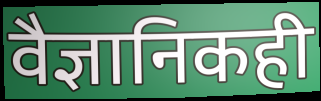
वैज्ञानिकही